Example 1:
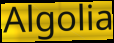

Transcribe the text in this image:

Algolia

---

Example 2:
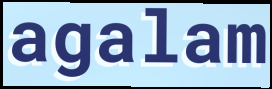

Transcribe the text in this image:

agalam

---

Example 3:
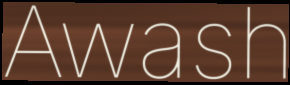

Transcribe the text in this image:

Awash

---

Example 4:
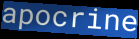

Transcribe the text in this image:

apocrine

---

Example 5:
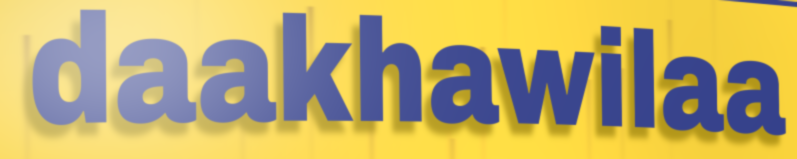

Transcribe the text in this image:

daakhawilaa